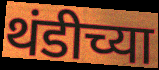
थंडीच्या